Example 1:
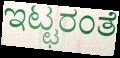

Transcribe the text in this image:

ಇಟ್ಟರಂತೆ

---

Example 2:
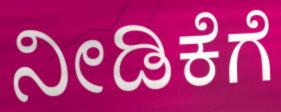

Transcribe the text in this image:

ನೀಡಿಕೆಗೆ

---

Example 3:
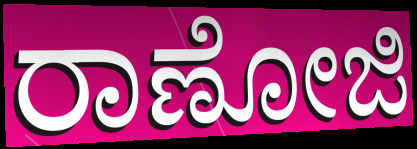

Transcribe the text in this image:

ರಾಣೋಜಿ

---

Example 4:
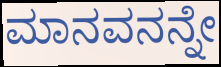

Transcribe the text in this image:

ಮಾನವನನ್ನೇ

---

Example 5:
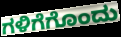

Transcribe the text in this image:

ಗಳಿಗೆಗೊಂದು